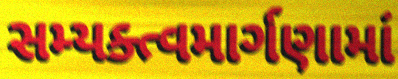
સમ્યક્ત્વમાર્ગણામાં